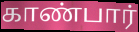
காண்பார்